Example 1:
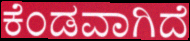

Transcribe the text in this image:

ಕೆಂಡವಾಗಿದೆ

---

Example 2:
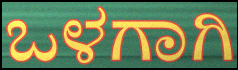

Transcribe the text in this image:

ಒಳಗಾಗಿ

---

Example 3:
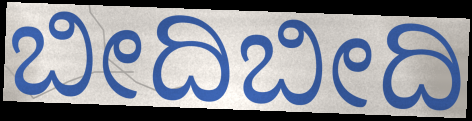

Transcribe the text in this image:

ಬೀದಿಬೀದಿ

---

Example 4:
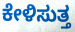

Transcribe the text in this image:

ಕೇಳಿಸುತ್ತ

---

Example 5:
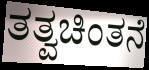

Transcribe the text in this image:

ತತ್ವಚಿಂತನೆ